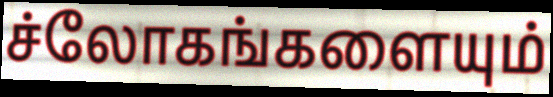
ச்லோகங்களையும்